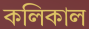
কলিকাল